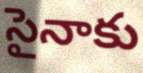
సైనాకు